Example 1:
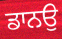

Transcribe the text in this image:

ਡਾਨਉ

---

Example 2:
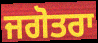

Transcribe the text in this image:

ਜਗੋਤਰਾ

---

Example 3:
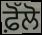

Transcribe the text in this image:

ਫ਼ੋੱਲੋ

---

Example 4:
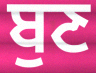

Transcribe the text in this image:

ਬੁਣ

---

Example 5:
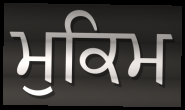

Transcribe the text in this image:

ਮੁਕਿਮ